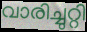
വാരിച്ചുറ്റി